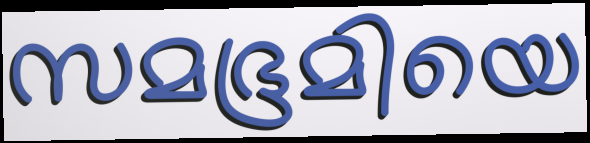
സമഭൂമിയെ